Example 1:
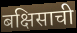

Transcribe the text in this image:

बक्षिसाची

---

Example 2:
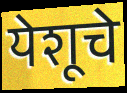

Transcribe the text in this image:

येशूचे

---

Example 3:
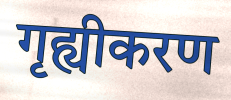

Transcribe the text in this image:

गृह्यीकरण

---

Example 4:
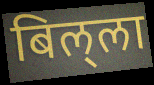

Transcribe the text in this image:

बिल्ला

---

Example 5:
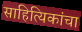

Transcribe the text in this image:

साहित्यिकांचा